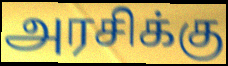
அரசிக்கு